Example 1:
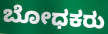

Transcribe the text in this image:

ಬೋಧಕರು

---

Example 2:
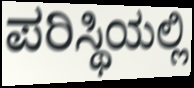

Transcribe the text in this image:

ಪರಿಸ್ಥಿಯಲ್ಲಿ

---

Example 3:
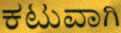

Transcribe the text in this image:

ಕಟುವಾಗಿ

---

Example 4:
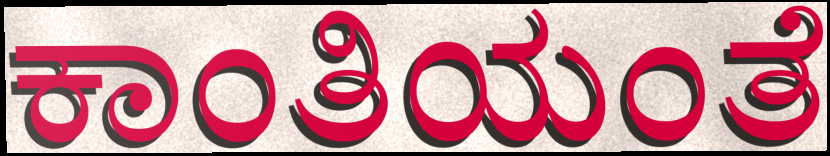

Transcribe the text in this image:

ಕಾಂತಿಯಂತೆ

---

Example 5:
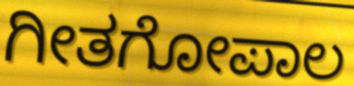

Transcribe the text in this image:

ಗೀತಗೋಪಾಲ